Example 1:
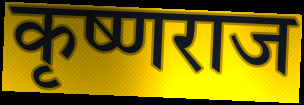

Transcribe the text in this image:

कृष्णराज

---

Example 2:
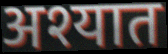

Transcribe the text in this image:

अश्यात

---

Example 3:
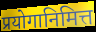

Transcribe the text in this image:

प्रयोगानिमित्त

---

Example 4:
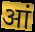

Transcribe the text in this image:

आं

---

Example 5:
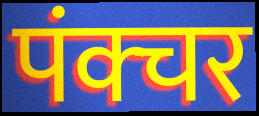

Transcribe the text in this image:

पंक्‍चर